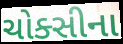
ચોક્સીના